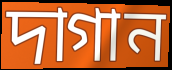
দাগান